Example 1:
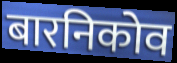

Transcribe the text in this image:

बारनिकोव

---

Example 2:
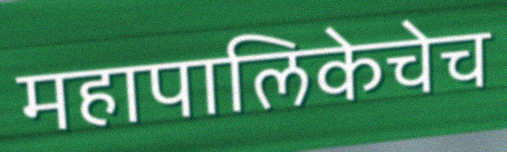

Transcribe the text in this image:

महापालिकेचेच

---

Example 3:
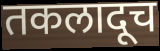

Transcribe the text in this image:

तकलादूच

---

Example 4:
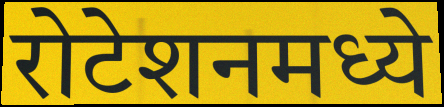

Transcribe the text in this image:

रोटेशनमध्ये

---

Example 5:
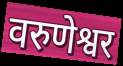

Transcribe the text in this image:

वरुणेश्वर